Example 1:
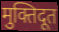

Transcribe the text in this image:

मुक्तिदूत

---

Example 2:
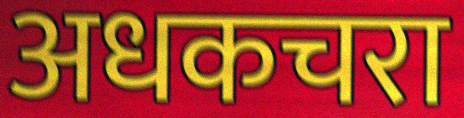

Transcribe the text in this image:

अधकचरा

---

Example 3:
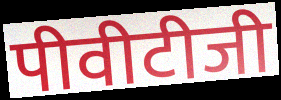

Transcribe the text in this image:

पीवीटीजी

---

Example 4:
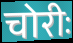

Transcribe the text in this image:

चोरीः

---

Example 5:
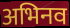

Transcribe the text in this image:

अभिनव